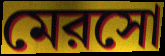
মেরসো